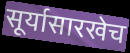
सूर्यासारखेच